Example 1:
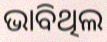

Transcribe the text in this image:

ଭାବିଥିଲ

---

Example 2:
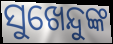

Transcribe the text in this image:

ସୁଖେନ୍ଦୁଙ୍କ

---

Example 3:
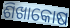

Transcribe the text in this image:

ଶିଖାକୋଷ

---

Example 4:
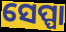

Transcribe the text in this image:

ସେପ୍ପା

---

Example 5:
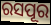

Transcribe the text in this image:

ରସପୂର